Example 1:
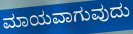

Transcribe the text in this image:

ಮಾಯವಾಗುವುದು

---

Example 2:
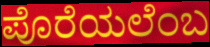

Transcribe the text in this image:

ಪೊರೆಯಲೆಂಬ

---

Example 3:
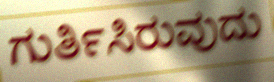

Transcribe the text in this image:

ಗುರ್ತಿಸಿರುವುದು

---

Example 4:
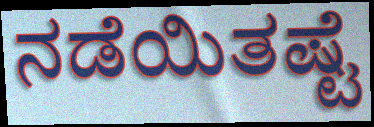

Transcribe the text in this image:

ನಡೆಯಿತಷ್ಟೆ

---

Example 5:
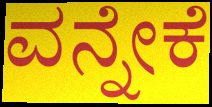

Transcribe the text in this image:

ವನ್ನೇಕೆ